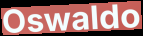
Oswaldo